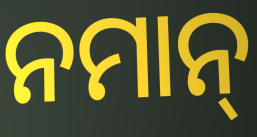
ନମାନ୍